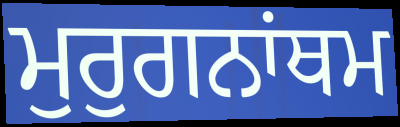
ਮੁਰੁਗਨਾਂਥਮ